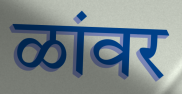
ळांवर